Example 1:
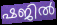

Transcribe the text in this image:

ഷജിൽ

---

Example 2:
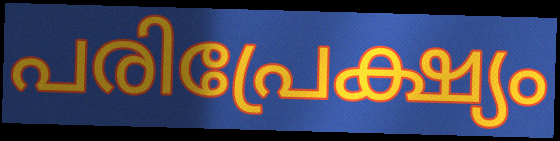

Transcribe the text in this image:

പരിപ്രേക്ഷ്യം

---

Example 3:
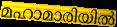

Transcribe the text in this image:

മഹാമാരിയിൽ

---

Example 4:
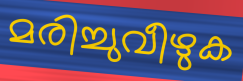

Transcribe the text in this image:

മരിച്ചുവീഴുക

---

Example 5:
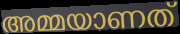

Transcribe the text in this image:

അമ്മയാണത്